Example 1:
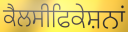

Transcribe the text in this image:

ਕੈਲਸੀਫਿਕੇਸ਼ਨਾਂ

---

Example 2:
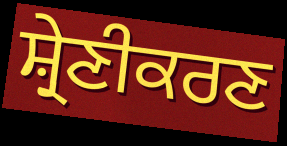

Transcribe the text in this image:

ਸ਼੍ਰੇਣੀਕਰਣ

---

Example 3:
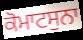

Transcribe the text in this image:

ਕੋਮਾਟਸੁਨਾ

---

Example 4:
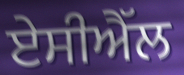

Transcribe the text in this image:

ਏਸੀਐੱਲ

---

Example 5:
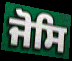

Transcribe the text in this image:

ਜੋਸਿ